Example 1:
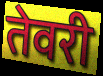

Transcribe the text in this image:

तेवरी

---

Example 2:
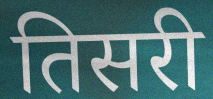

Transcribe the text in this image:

तिसरी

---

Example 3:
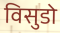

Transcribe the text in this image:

विसुडो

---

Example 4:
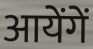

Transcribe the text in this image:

आयेंगें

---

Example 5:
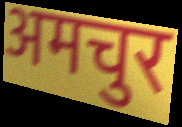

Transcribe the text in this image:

अमचुर